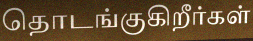
தொடங்குகிறீர்கள்